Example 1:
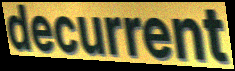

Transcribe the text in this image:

decurrent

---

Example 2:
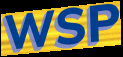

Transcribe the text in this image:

WSP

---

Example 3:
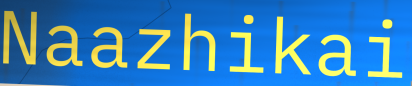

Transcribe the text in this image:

Naazhikai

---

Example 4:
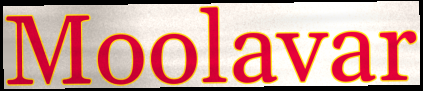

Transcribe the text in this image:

Moolavar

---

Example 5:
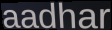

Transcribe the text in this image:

aadhar